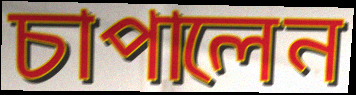
চাপালেন